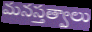
మనస్తత్వాలు